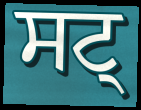
ਸਟ੍